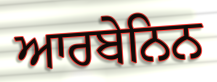
ਆਰਬੇਨਿਨ